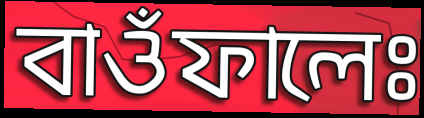
বাওঁফালেঃ